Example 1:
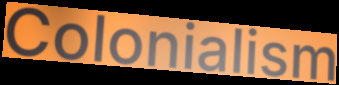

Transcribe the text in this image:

Colonialism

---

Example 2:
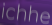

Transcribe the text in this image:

ichhe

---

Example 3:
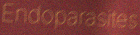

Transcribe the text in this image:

Endoparasites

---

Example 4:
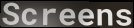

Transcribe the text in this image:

Screens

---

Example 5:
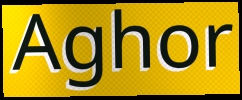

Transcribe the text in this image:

Aghor